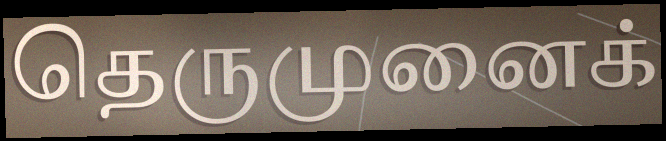
தெருமுனைக்